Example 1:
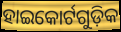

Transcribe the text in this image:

ହାଇକୋର୍ଟଗୁଡ଼ିକ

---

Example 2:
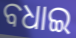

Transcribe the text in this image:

ବଧାଇ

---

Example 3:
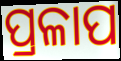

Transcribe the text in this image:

ପ୍ରଳାପ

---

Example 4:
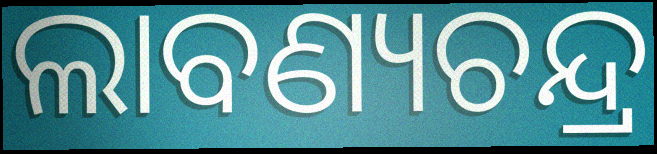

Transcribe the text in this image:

ଲାବଣ୍ୟଚନ୍ଦ୍ର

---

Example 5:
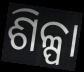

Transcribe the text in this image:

ଶିଳ୍ପା